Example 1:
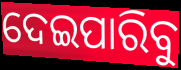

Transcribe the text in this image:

ଦେଇପାରିବୁ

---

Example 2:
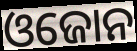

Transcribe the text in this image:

ଓଜୋନ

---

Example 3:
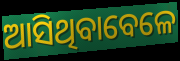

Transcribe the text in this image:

ଆସିଥିବାବେଳେ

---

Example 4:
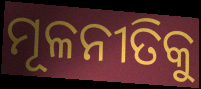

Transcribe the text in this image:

ମୂଳନୀତିକୁ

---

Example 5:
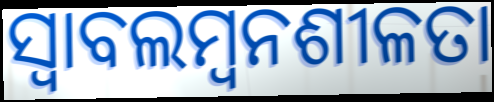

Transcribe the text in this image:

ସ୍ୱାବଲମ୍ୱନଶୀଳତା